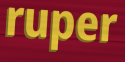
ruper